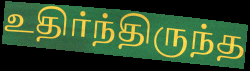
உதிர்ந்திருந்த